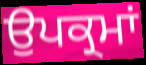
ਉਪਕ੍ਰਮਾਂ